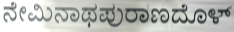
ನೇಮಿನಾಥಪುರಾಣದೊಳ್